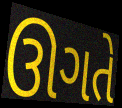
ઊગતે